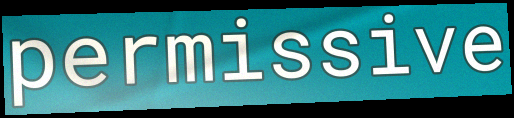
permissive